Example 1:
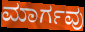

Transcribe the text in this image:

ಮಾರ್ಗವು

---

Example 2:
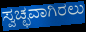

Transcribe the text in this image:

ಸ್ವಚ್ಛವಾಗಿರಲು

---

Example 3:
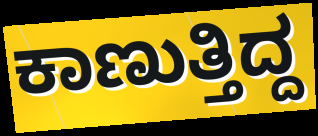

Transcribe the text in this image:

ಕಾಣುತ್ತಿದ್ದ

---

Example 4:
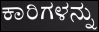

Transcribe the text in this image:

ಕಾರಿಗಳನ್ನು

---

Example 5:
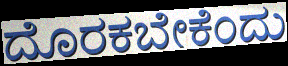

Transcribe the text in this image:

ದೊರಕಬೇಕೆಂದು